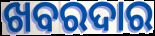
ଖବରଦାର